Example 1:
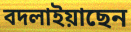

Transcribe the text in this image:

বদলাইয়াছেন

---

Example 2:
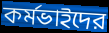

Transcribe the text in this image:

কর্মভাইদের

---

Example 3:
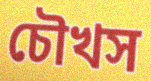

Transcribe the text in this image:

চৌখস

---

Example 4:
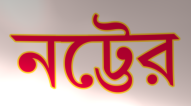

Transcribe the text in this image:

নট্টের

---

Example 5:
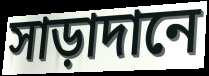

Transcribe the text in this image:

সাড়াদানে